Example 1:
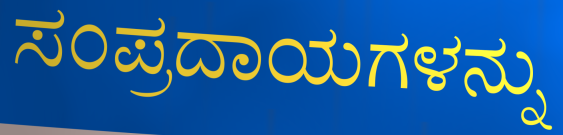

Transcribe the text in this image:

ಸಂಪ್ರದಾಯಗಳನ್ನು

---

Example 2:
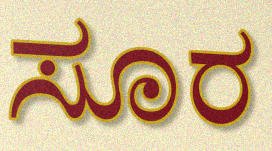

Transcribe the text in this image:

ಸೂರ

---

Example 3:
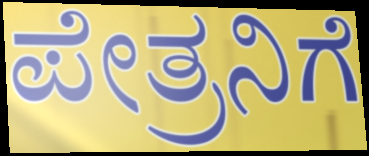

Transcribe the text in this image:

ಪೇತ್ರನಿಗೆ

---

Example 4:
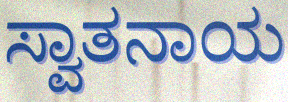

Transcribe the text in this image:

ಸ್ವಾತನಾಯ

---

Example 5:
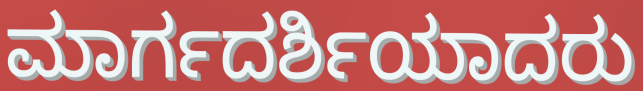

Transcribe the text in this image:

ಮಾರ್ಗದರ್ಶಿಯಾದರು